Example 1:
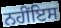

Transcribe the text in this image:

ਨਹੀਂਇਸ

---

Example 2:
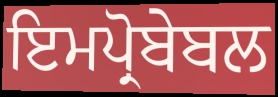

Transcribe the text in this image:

ਇਮਪ੍ਰੋਬੇਬਲ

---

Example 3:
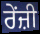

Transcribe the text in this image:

ਰੇਂਜ਼ੀ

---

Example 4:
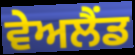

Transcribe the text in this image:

ਵੇਅਲੈਂਡ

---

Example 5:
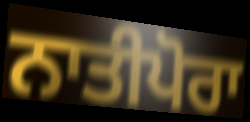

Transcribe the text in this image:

ਨਾਤੀਪੋਰਾ